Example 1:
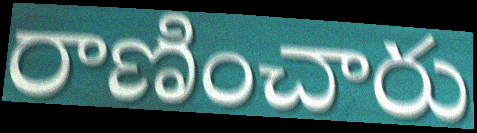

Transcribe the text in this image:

రాణించారు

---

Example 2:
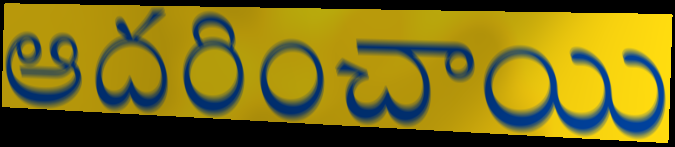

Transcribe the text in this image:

ఆదరించాయి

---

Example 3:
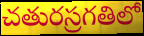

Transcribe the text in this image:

చతురస్రగతిలో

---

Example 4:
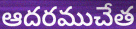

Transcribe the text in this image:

ఆదరముచేత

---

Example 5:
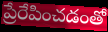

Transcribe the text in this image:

ప్రేరేపించడంతో